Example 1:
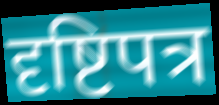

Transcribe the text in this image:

दृष्टिपत्र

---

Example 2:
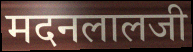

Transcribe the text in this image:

मदनलालजी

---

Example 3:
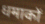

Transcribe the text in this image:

धमाकों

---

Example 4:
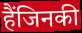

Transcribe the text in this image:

हैंजिनकी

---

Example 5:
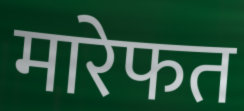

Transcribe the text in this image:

मारेफत